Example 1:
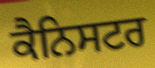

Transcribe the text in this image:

ਕੈਨਿਸਟਰ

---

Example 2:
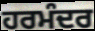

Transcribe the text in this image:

ਹਰਮੰਦਰ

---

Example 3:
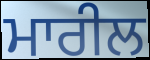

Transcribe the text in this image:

ਮਾਰੀਲ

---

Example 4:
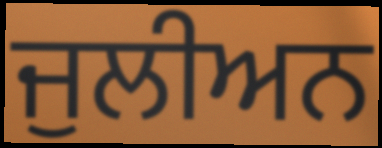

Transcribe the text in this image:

ਜੁਲੀਅਨ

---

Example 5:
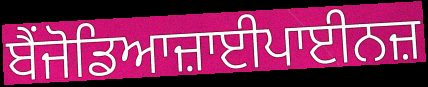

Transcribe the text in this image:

ਬੈਂਜੋਡਿਆਜ਼ਾਈਪਾਈਨਜ਼